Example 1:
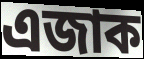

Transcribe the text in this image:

এজাক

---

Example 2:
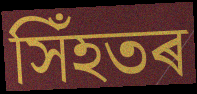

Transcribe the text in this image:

সিঁহতৰ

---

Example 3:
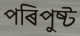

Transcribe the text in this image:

পৰিপুষ্ট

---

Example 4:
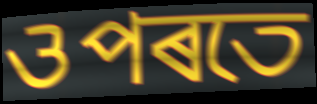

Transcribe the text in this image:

ওপৰতে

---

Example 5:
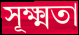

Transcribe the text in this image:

সূক্ষ্মতা